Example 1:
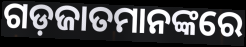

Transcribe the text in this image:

ଗଡ଼ଜାତମାନଙ୍କରେ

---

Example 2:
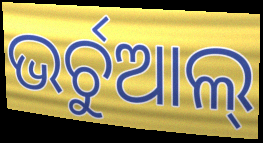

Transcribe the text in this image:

ଭର୍ଚୁଆଲ୍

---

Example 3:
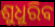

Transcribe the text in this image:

ଶୁଧୁରିବ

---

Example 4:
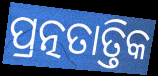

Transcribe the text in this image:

ପ୍ରତ୍ନତାତ୍ତିକ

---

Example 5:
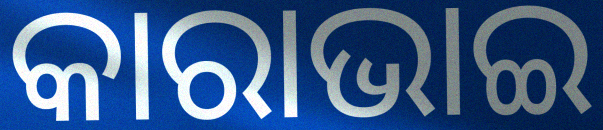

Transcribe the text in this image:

କାରାଭାଇ